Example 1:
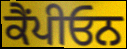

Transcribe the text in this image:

ਕੈਂਪੀਓਨ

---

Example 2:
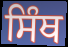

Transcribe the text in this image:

ਸਿੰਥ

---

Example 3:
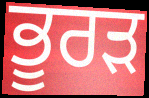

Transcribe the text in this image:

ਭੂਰੜ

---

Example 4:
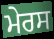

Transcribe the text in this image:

ਮੇਰਸ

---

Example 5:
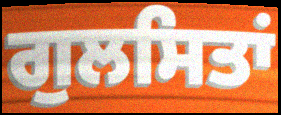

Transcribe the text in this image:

ਗੁਲਸਿਤਾਂ